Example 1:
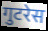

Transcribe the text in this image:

गुटरेस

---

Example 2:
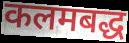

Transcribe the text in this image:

कलमबद्ध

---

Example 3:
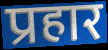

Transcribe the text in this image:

प्रहार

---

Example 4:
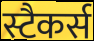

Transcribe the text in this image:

स्टैकर्स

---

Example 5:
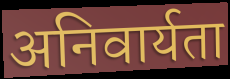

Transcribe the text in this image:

अनिवार्यता